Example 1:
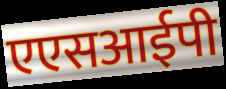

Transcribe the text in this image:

एएसआईपी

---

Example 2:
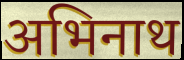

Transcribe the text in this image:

अभिनाथ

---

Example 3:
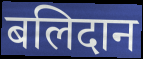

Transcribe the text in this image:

बलिदान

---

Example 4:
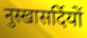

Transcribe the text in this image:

नुस्खासर्दियों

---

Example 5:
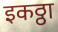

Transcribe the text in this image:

इकठ्ठा